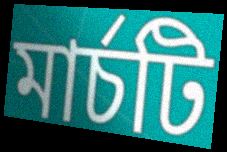
মার্চটি